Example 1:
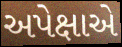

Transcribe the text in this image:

અપેક્ષાએ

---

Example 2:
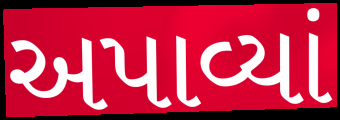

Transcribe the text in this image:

અપાવ્યાં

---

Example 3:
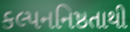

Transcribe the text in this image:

કલ્પનનિષ્ઠતાથી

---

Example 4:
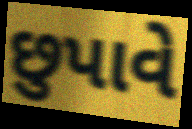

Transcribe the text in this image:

છુપાવે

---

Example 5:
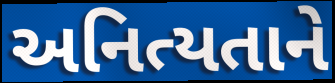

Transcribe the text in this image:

અનિત્યતાને